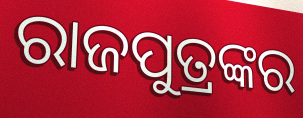
ରାଜପୁତ୍ରଙ୍କର